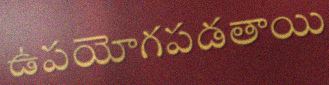
ఉపయోగపడతాయి